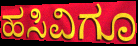
ಹಸಿವಿಗೂ